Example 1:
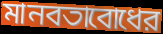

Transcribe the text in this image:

মানবতাবোধের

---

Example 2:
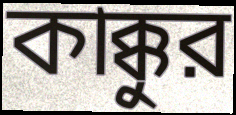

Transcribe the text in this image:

কাক্কুর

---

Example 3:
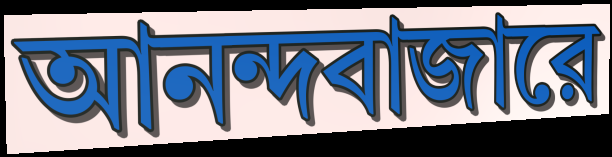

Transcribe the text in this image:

আনন্দবাজারে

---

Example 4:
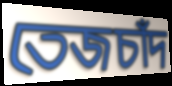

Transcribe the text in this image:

তেজচাঁদ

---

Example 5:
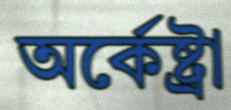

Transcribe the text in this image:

অর্কেষ্ট্রা